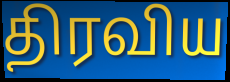
திரவிய